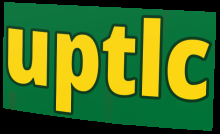
uptlc